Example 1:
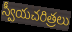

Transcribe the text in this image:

స్వీయచరిత్రలు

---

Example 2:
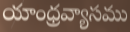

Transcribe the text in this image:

యాంధ్రవ్యాసము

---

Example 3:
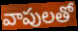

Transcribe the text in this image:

వాపులతో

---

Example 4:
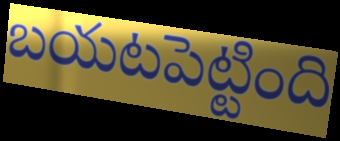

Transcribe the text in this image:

బయటపెట్టింది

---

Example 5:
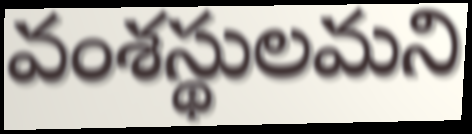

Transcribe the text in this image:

వంశస్థులమని